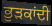
ਭੁੜਕਾਂਦੀ